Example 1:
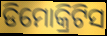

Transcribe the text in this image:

ଡିମୋକ୍ରିଟିସ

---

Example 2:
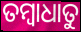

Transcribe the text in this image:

ତମ୍ବାଧାତୁ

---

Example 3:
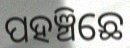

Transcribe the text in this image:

ପହଞ୍ଚିଛେ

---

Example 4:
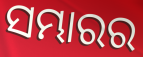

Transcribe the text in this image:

ସମ୍ଭାରର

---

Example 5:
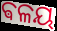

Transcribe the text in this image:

ଵଳୟ